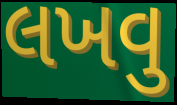
લખવુ